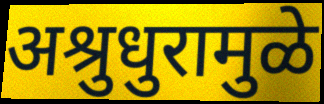
अश्रुधुरामुळे